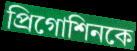
প্রিগোশিনকে